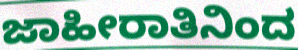
ಜಾಹೀರಾತಿನಿಂದ